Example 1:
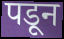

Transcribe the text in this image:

पडून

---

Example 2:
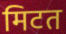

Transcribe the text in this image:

मिटत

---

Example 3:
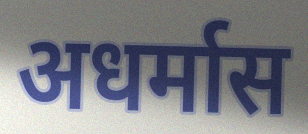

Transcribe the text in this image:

अधर्मास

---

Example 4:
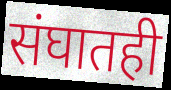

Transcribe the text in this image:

संघातही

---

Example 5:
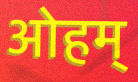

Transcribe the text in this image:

ओहम्